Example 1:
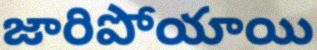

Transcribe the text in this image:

జారిపోయాయి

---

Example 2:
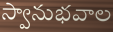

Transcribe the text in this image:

స్వానుభవాల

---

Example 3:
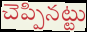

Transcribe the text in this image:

చెప్పినట్టు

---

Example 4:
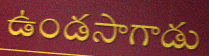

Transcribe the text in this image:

ఉండసాగాడు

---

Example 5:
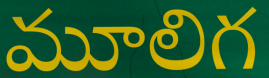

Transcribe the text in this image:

మూలిగ